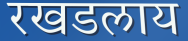
रखडलाय